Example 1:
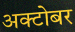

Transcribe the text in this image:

अक्टोबर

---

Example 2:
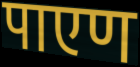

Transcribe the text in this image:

पाएण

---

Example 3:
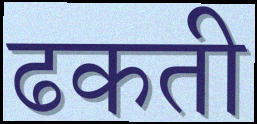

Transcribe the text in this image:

ढकती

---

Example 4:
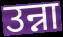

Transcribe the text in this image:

उन्ना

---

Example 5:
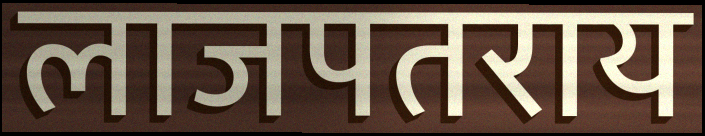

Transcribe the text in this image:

लाजपतराय